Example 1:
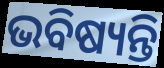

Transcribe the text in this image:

ଭବିଷ୍ୟନ୍ତି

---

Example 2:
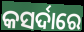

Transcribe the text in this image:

କସର୍ଦାରେ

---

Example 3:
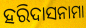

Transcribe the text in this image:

ହରିଦାସନାମା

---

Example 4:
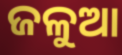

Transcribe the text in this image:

ଜଳୁଆ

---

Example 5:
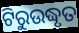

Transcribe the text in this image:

ଟିରୁଉଦ୍ଧୃତ